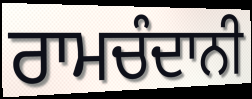
ਰਾਮਚੰਦਾਨੀ